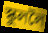
স্কুললৈ